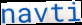
navti